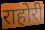
राहोरी